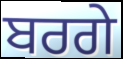
ਬਰਗੇ